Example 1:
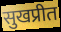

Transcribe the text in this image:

सुखप्रीत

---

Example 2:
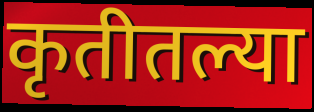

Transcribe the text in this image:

कृतीतल्या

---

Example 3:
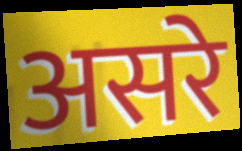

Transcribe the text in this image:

असरे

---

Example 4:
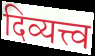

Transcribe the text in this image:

दिव्यत्त्व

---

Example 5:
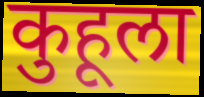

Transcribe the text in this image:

कुहूला